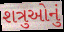
શત્રુઓનું